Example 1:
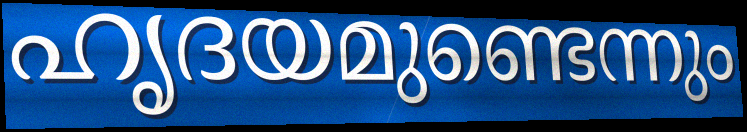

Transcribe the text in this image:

ഹൃദയമുണ്ടെന്നും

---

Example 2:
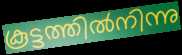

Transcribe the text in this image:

കൂട്ടത്തിൽനിന്നു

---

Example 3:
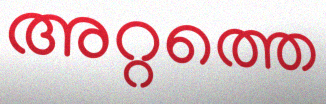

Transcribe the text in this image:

അറ്റത്തെ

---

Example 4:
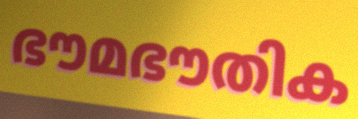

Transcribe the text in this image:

ഭൗമഭൗതിക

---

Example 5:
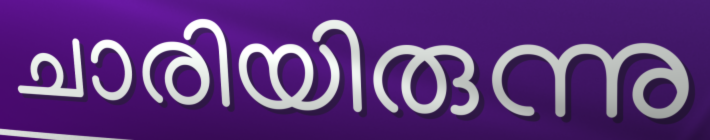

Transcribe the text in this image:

ചാരിയിരുന്നു